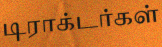
டிராக்டர்கள்